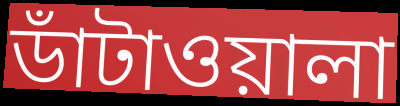
ডাঁটাওয়ালা